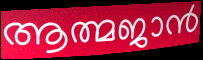
ആത്മജാൻ